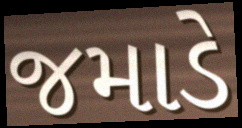
જમાડે